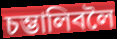
চম্ভালিবলৈ